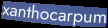
xanthocarpum